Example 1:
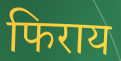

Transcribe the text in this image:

फिराय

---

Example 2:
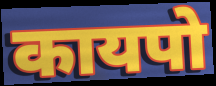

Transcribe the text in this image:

कायपो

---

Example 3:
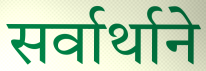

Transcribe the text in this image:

सर्वार्थाने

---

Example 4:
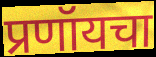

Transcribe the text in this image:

प्रणॉयचा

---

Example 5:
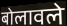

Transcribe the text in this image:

बोलावले